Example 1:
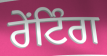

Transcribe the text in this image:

ਰੇਂਟਿੰਗ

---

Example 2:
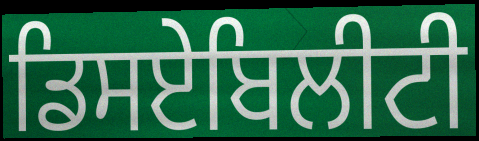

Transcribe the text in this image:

ਡਿਸਏਬਿਲੀਟੀ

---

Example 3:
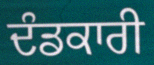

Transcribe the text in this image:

ਦੰਡਕਾਰੀ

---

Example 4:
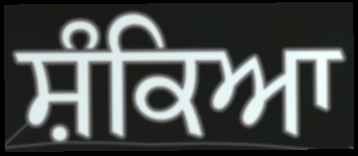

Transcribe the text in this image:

ਸ਼ੰਕਿਆ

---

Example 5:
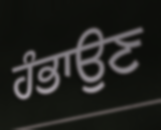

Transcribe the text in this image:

ਹੰਭਾਉਣ